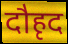
दौहृद